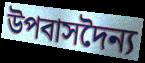
উপবাসদৈন্য